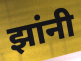
झांनी